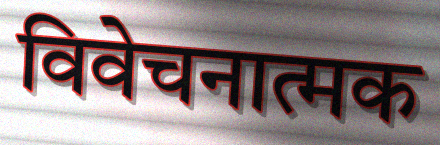
विवेचनात्मक